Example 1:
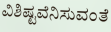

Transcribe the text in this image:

ವಿಶಿಷ್ಟವೆನಿಸುವಂತೆ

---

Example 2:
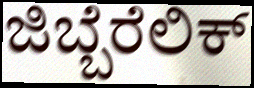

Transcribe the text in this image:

ಜಿಬ್ಬೆರೆಲಿಕ್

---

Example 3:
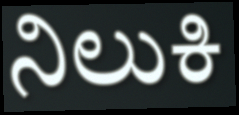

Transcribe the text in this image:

ನಿಲುಕಿ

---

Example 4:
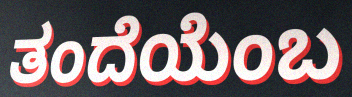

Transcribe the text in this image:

ತಂದೆಯೆಂಬ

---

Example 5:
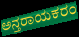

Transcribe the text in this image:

ಅನ್ತರಾಯಕರಂ